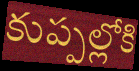
కుప్పల్లోకి